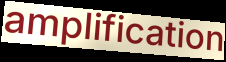
amplification